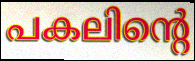
പകലിന്റെ